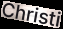
Christi